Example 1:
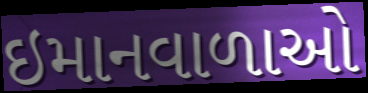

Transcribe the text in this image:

ઇમાનવાળાઓ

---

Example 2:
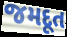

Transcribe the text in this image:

જમદૂત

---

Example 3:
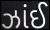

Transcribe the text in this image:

ઝાંઈ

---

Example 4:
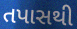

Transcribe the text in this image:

તપાસથી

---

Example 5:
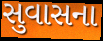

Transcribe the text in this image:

સુવાસના